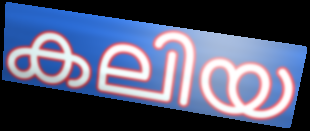
കലിയ